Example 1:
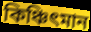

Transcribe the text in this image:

কিঞ্চিৎমান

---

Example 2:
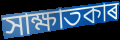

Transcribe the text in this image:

সাক্ষাতকাৰ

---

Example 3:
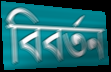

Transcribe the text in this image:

বিবৰ্তন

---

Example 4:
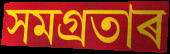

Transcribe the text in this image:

সমগ্ৰতাৰ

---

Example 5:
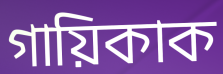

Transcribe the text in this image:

গায়িকাক